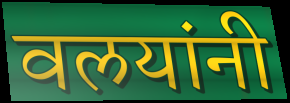
वलयांनी